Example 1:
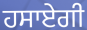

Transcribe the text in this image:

ਹਸਾਏਗੀ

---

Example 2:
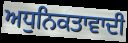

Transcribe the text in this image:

ਅਧੁਨਿਕਤਾਵਾਦੀ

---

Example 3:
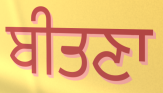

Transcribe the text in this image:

ਬੀਤਣਾ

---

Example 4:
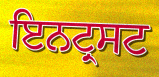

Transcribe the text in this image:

ਇਨਟ੍ਰਸਟ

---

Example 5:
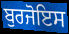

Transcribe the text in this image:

ਬੁਰਜੋਇਸ